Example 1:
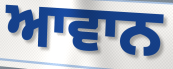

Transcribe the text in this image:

ਆਵਾਨ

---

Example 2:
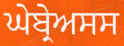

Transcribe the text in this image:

ਘੇਬ੍ਰੇਅਸਸ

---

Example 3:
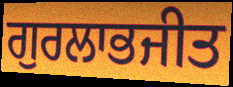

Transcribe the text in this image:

ਗੁਰਲਾਭਜੀਤ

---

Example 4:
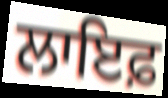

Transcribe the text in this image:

ਲਾਇਫ਼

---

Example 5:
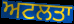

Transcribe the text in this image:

ਅਟਲਤਾ